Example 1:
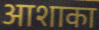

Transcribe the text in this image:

आशाका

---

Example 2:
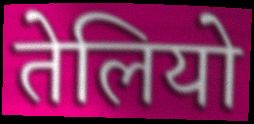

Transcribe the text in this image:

तेलियो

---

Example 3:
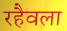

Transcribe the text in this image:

रहैवला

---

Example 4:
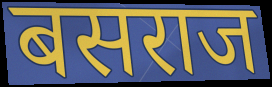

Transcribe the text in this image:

बसराज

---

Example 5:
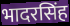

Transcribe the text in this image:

भादरसिंह